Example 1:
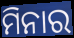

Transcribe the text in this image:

ମିନାର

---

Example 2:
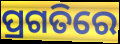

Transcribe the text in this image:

ପ୍ରଗତିରେ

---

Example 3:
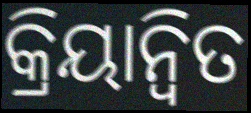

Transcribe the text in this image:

କ୍ରିୟାନ୍ୱିତ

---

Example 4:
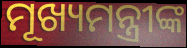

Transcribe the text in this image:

ମୂଖ୍ୟମନ୍ତ୍ରୀଙ୍କ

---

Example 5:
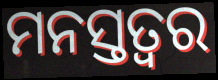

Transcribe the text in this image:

ମନସ୍ତତ୍ଵର